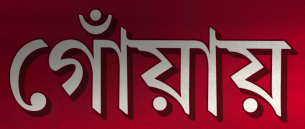
গোঁয়ায়